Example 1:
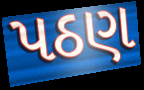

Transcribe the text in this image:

પઠણ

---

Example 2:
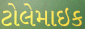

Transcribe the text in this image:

ટોલેમાઇક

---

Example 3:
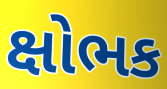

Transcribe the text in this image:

ક્ષોભક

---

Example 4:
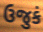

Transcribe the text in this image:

ઉજુકં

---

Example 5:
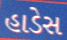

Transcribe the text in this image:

હાડેસ